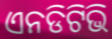
ଏନଡିଟିଭି